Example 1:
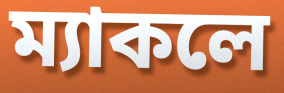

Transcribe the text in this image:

ম্যাকলে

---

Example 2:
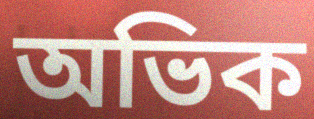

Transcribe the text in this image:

অভিক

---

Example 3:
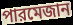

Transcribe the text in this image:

পারমেজান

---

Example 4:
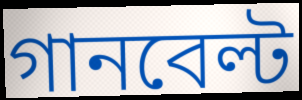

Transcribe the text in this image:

গানবেল্ট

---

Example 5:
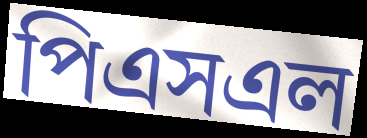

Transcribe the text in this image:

পিএসএল